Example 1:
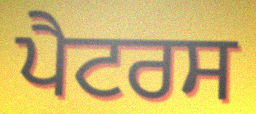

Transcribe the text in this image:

ਪੈਟਰਸ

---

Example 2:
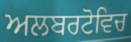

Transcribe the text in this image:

ਅਲਬਰਟੋਵਿਚ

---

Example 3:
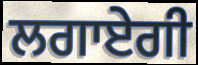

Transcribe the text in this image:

ਲਗਾਏਗੀ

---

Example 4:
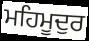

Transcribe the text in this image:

ਮਹਿਮੂਦੁਰ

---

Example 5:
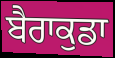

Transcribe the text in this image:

ਬੈਰਾਕੁਡਾ